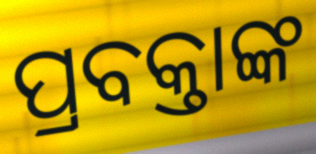
ପ୍ରବକ୍ତାଙ୍କ